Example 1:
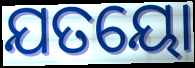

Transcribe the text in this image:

ଯତୟୋ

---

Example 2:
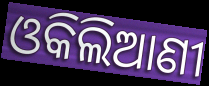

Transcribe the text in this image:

ଓକିଲିଆଣୀ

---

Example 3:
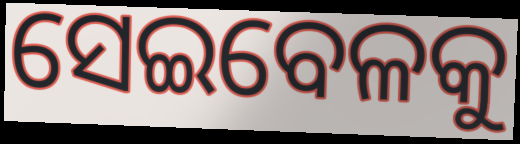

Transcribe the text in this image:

ସେଇବେଳକୁ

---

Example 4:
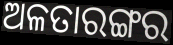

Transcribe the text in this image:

ଅଳତାରଙ୍ଗର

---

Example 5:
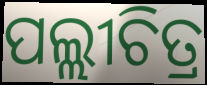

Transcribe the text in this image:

ପଲ୍ଲୀଚିତ୍ର